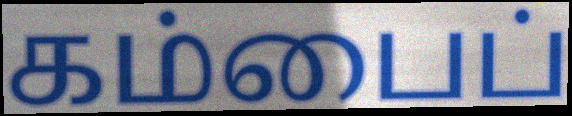
கம்பைப்